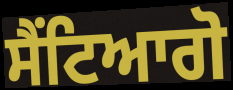
ਸੈਂਟਿਆਗੋ